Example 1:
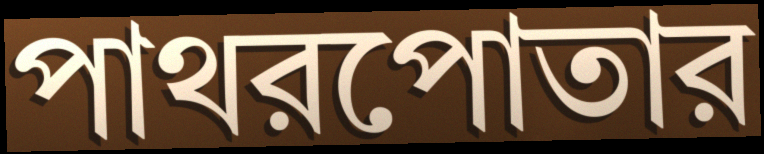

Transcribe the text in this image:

পাথরপোতার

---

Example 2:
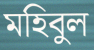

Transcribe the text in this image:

মহিবুল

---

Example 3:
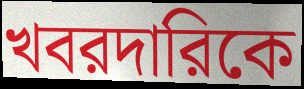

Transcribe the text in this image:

খবরদারিকে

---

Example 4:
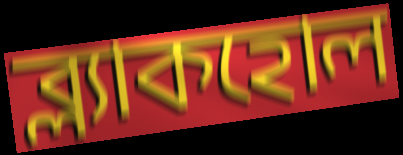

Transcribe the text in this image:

ব্ল্যাকহোল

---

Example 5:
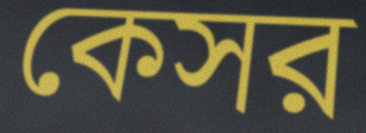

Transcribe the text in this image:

কেসর